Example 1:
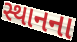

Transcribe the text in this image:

સ્થાનના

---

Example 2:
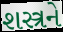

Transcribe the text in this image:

શસ્ત્રને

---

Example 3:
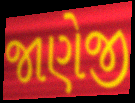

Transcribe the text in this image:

જાણેજી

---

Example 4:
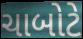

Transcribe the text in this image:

ચાબોટે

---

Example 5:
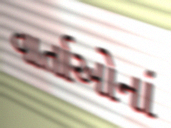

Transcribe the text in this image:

વાર્તાઓનાં